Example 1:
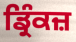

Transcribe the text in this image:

ਡ੍ਰਿੰਕਜ਼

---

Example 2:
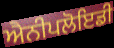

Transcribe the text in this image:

ਐਨੀਪਲੋਇਡੀ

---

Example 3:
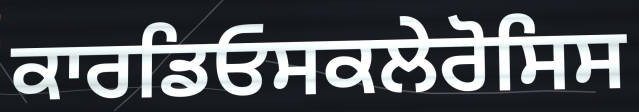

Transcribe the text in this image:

ਕਾਰਡਿਓਸਕਲੇਰੋਸਿਸ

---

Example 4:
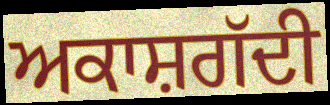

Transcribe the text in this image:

ਅਕਾਸ਼ਗੱਦੀ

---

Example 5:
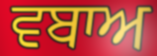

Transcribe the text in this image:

ਵਬਾਅ